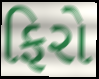
ફિરો